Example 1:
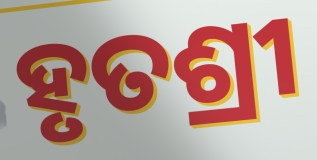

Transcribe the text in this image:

ହୃତଶ୍ରୀ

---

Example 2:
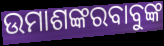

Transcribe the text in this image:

ଉମାଶଙ୍କରବାବୁଙ୍କ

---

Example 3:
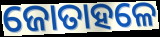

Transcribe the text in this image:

ଜୋତାହଳେ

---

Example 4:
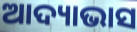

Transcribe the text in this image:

ଆଦ୍ୟାଭାସ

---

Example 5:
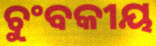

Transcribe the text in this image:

ଚୁଂବକୀୟ